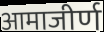
आमाजीर्ण